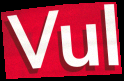
Vul